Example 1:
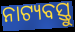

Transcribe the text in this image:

ନାଟ୍ୟବସ୍ତୁ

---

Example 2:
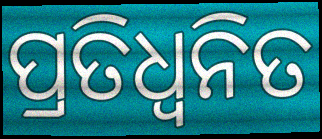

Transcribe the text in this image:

ପ୍ରତିଧ୍ଵନିତ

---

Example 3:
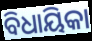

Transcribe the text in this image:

ବିଧାୟିକା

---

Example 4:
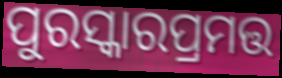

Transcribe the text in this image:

ପୁରସ୍କାରପ୍ରମତ୍ତ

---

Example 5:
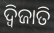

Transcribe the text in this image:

ଦ୍ୱିଜାତି